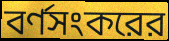
বর্ণসংকরের